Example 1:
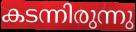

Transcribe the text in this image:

കടന്നിരുന്നു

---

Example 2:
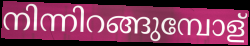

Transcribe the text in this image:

നിന്നിറങ്ങുമ്പോള്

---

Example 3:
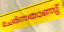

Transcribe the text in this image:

ചേർന്നതാണു്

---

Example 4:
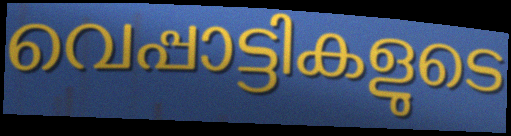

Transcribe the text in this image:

വെപ്പാട്ടികളുടെ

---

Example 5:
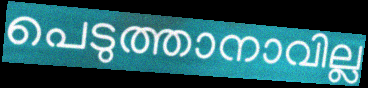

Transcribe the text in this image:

പെടുത്താനാവില്ല